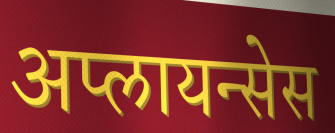
अप्लायन्सेस